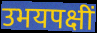
उभयपक्षीं